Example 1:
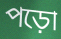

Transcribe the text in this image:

পড়ো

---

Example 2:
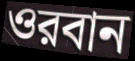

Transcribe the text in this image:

ওরবান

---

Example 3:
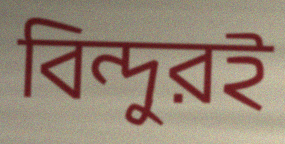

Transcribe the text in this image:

বিন্দুরই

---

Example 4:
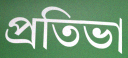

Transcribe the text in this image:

প্রতিভা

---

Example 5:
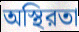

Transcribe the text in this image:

অস্থিরতা